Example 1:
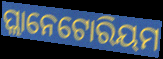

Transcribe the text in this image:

ପ୍ଲାନେଟୋରିୟମ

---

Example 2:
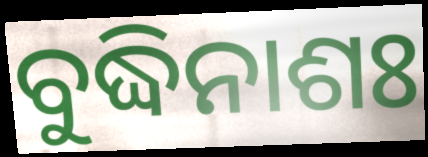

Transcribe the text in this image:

ବୁଦ୍ଧିନାଶଃ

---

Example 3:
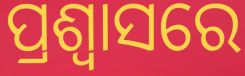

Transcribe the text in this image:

ପ୍ରଶ୍ଵାସରେ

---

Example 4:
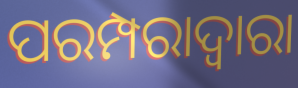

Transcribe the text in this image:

ପରମ୍ପରାଦ୍ବାରା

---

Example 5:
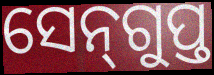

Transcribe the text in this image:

ସେନ୍‌ଗୁପ୍ତ